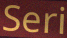
Seri